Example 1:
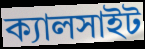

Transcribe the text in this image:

ক্যালসাইট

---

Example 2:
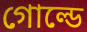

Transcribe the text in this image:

গোল্ডে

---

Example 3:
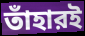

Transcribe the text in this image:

তাঁহারই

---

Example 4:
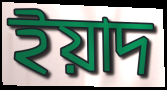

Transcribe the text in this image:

ইয়াদ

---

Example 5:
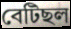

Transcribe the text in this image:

বেটিছল